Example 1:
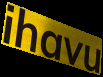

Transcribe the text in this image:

ihavu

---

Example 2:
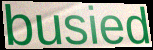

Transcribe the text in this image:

busied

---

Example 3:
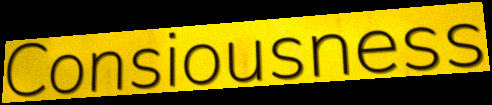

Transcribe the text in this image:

Consiousness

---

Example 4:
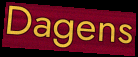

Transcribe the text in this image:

Dagens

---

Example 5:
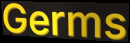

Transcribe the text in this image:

Germs